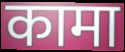
कामा